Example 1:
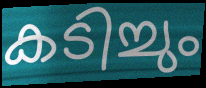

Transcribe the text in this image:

കടിച്ചും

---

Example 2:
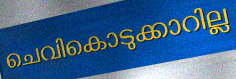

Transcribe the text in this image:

ചെവികൊടുക്കാറില്ല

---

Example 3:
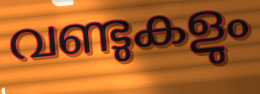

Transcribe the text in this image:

വണ്ടുകളും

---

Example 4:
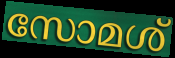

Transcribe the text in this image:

സോമശ്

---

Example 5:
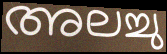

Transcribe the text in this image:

അലച്ചു